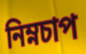
নিম্নচাপ